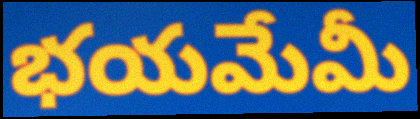
భయమేమీ